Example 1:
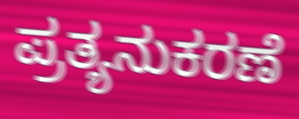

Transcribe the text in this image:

ಪ್ರತ್ಯನುಕರಣೆ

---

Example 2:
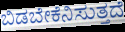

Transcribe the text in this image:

ಬಿಡಬೇಕೆನಿಸುತ್ತದೆ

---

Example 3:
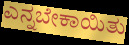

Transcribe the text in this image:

ಎನ್ನಬೇಕಾಯಿತು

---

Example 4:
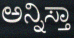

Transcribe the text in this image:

ಅನ್ನಿಸ್ತಾ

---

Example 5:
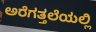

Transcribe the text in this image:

ಅರೆಗತ್ತಲೆಯಲ್ಲಿ